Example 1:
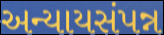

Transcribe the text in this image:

અન્યાયસંપન્ન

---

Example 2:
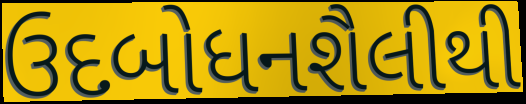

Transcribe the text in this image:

ઉદબોધનશૈલીથી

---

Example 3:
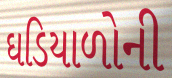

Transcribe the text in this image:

ઘડિયાળોની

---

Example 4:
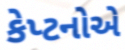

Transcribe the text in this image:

કેપ્ટનોએ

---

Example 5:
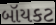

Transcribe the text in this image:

બૉયકટ